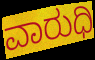
ವಾರುಧಿ